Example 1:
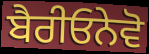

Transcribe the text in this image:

ਬੈਰੀਓਨੇਵੋ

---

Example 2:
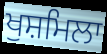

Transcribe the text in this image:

ਖੁਸ਼ਮਿਲਾ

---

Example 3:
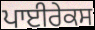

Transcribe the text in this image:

ਪਾਈਰੇਕਸ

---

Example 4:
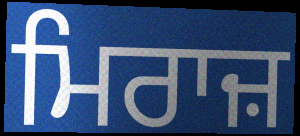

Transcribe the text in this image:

ਮਿਰਾਜ਼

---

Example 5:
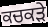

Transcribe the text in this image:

ਕਚਕੜੇ